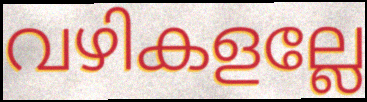
വഴികളല്ലേ